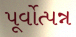
પૂર્વોત્પન્ન